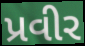
પ્રવીર